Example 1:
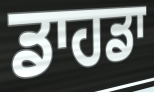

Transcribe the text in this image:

ਡਾਹਡਾ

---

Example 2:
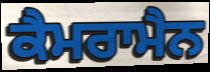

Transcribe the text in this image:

ਕੈਮਰਾਮੈਨ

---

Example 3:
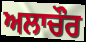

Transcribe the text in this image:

ਅਲਾਚੌਰ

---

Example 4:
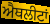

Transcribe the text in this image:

ਐਥਲੀਟਾਂ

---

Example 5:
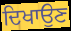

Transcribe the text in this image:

ਦਿਖਾਉਣ